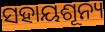
ସହାୟଶୂନ୍ୟ